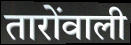
तारोंवाली